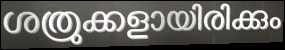
ശത്രുക്കളായിരിക്കും